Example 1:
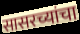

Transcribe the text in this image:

सासरच्यांचा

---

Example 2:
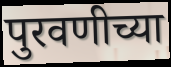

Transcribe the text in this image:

पुरवणीच्या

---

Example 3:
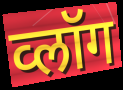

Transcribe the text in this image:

व्लॉग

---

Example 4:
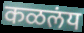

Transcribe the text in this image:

कळलंय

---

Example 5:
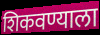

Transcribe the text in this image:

शिकवण्याला